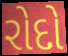
રોદો